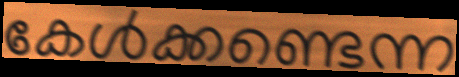
കേൾക്കണ്ടെന്ന